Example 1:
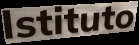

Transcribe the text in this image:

Istituto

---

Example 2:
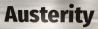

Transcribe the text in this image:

Austerity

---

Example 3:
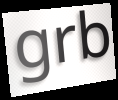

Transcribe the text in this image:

grb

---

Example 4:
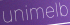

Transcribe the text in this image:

unimelb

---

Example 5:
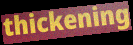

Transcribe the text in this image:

thickening